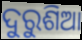
ଦୁରୁଶିଆ